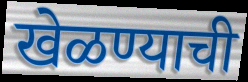
खेळण्याची